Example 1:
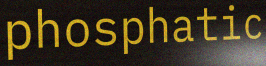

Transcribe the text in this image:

phosphatic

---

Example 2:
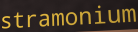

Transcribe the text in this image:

stramonium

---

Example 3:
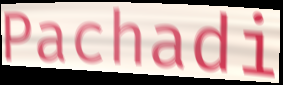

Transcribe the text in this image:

Pachadi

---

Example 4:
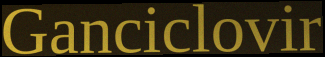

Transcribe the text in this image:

Ganciclovir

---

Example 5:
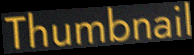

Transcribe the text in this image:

Thumbnail